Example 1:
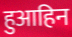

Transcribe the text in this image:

हुआहिन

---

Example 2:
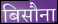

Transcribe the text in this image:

बिसौना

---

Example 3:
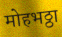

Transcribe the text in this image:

मोहभठ्ठा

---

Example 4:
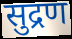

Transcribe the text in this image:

सुद्रण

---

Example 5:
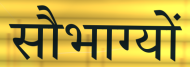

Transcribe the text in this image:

सौभाग्यों